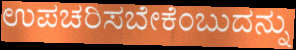
ಉಪಚರಿಸಬೇಕೆಂಬುದನ್ನು